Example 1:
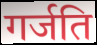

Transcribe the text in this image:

गर्जति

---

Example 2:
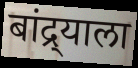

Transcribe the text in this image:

बांद्र्याला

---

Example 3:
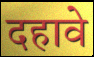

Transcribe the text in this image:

दहावे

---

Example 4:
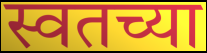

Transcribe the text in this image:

स्वतच्या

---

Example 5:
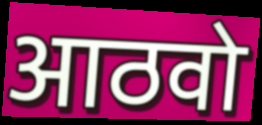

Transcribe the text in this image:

आठवो